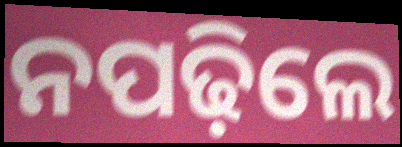
ନପଢ଼ିଲେ